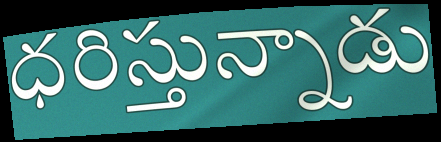
ధరిస్తున్నాడు